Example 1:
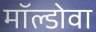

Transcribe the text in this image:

मॉल्डोवा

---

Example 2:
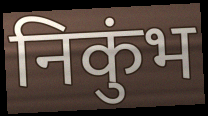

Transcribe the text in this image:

निकुंभ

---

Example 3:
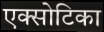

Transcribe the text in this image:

एक्सोटिका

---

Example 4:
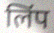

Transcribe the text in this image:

लिंप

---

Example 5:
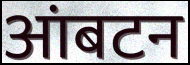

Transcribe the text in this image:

आंबटन